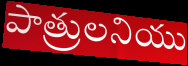
పాత్రులనియు